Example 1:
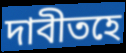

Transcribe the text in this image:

দাবীতহে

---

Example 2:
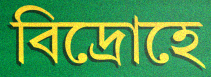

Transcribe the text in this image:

বিদ্ৰোহে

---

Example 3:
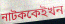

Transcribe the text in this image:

নাটককেইখন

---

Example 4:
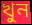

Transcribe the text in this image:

খুন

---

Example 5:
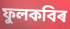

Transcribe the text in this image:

ফুলকবিৰ